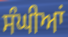
ਸੰਘੀਆਂ